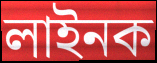
লাইনক